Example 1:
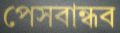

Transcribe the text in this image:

পেসবান্ধব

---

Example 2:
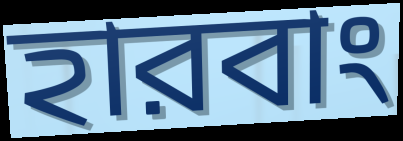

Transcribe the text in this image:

হারবাং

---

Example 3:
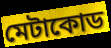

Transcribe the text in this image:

মেটাকোড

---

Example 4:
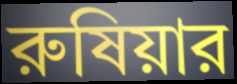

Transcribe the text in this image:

রুষিয়ার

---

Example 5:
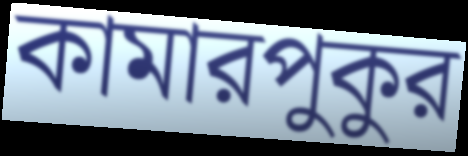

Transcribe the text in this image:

কামারপুকুর